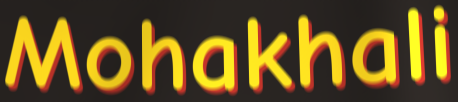
Mohakhali